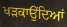
ਖੜਕਾਉਂਦਿਆਂ